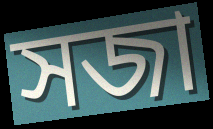
সজা